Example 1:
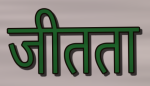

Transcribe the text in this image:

जीतता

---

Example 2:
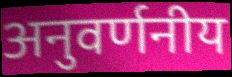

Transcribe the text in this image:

अनुवर्णनीय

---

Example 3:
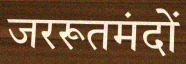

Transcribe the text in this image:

जररूतमंदों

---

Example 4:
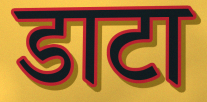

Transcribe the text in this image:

डाटा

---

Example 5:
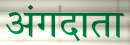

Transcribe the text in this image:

अंगदाता